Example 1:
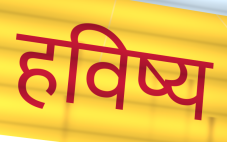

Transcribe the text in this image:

हविष्‍य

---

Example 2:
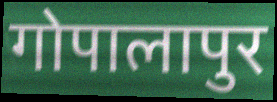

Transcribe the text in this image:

गोपालापुर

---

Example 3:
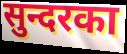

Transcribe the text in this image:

सुन्दरका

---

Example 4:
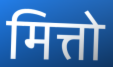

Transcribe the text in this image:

मित्तो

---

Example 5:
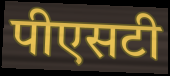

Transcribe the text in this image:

पीएसटी